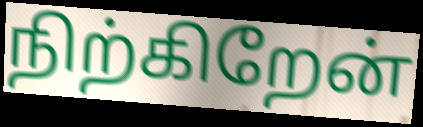
நிற்கிறேன்